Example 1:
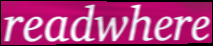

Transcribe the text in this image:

readwhere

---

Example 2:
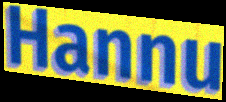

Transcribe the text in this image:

Hannu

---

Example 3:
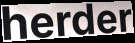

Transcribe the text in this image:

herder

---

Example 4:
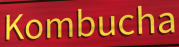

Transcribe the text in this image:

Kombucha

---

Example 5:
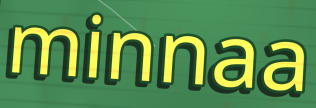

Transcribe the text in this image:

minnaa